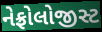
નેફ્રોલોજીસ્ટ